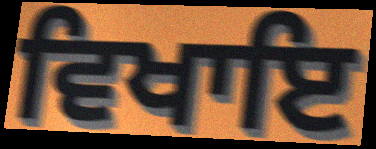
ਵਿਖਾਇ